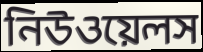
নিউওয়েলস